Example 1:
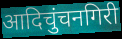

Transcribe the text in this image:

आदिचुंचनगिरी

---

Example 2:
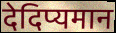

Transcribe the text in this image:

देदिप्यमान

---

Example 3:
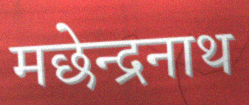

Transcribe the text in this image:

मछेन्द्रनाथ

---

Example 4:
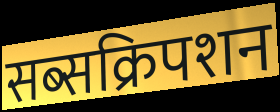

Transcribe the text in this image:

सब्सक्रिपशन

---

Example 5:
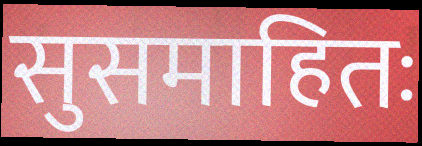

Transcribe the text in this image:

सुसमाहितः